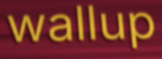
wallup